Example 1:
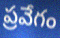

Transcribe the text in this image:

ప్రవేగం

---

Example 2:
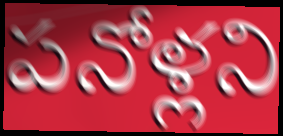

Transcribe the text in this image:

పనోళ్లని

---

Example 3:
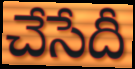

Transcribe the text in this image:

చేసేదీ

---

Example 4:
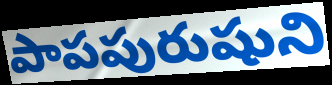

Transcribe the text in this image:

పాపపురుషుని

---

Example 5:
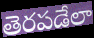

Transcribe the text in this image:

తెరపడేలా